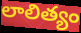
లాలిత్యం